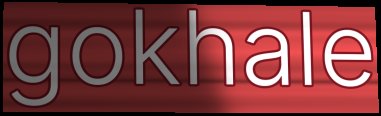
gokhale